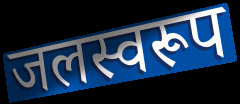
जलस्वरूप